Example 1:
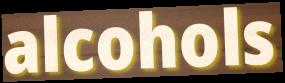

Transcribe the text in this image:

alcohols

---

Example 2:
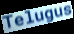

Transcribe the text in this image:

Telugus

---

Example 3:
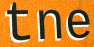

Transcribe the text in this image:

tne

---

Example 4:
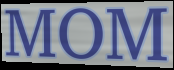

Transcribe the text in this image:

MOM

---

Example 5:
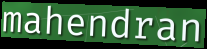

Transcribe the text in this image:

mahendran